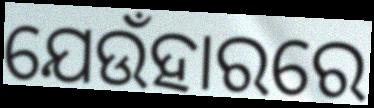
ଯେଉଁହାରରେ